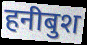
हनीबुश